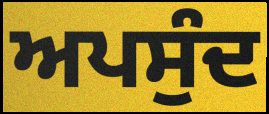
ਅਪਸੁੰਦ